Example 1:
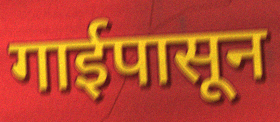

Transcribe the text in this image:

गाईपासून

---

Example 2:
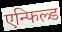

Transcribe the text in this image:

एन्फिल्ड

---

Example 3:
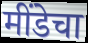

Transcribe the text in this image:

मींडेचा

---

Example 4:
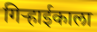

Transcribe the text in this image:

गिर्‍हाईकाला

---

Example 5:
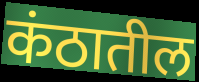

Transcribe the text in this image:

कंठातील